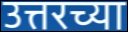
उत्तरच्या